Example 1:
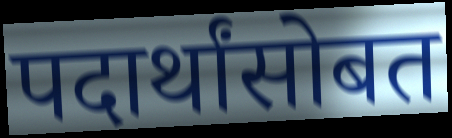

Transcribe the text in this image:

पदार्थांसोबत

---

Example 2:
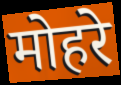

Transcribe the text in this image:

मोहरे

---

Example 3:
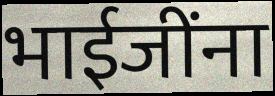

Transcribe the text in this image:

भाईजींना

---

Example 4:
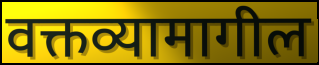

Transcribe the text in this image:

वक्तव्यामागील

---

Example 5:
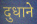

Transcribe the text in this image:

दुधाने